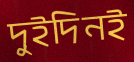
দুইদিনই